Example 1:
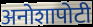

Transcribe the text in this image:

अनोशापोटी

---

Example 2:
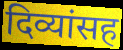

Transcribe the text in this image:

दिव्यांसह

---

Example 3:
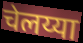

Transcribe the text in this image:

चेलय्या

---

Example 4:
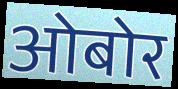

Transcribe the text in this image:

ओबोर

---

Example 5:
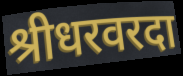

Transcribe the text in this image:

श्रीधरवरदा